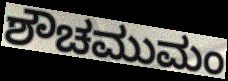
ಶೌಚಮುಮಂ